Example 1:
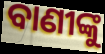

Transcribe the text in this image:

ବାଣୀଙ୍କୁ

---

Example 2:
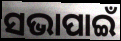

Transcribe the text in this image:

ସଭାପାଇଁ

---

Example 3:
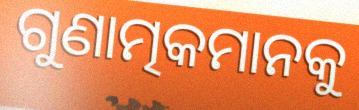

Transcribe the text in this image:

ଗୁଣାତ୍ମକମାନକୁ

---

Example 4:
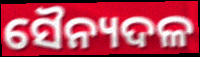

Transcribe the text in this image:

ସୈନ୍ୟଦଳ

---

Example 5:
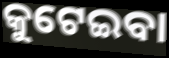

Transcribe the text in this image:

କୁଟେଇବା